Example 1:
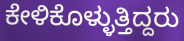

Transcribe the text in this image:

ಕೇಳಿಕೊಳ್ಳುತ್ತಿದ್ದರು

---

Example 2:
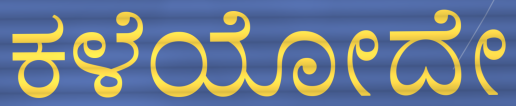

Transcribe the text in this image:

ಕಳೆಯೋದೇ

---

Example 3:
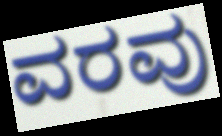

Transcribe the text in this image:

ವರವು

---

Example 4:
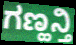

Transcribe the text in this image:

ಗಣ್ಹನ್ತಿ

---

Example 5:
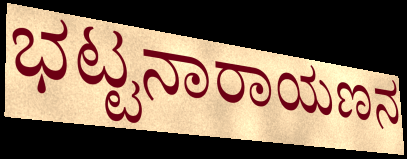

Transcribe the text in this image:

ಭಟ್ಟನಾರಾಯಣನ